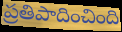
ప్రతిపాదించింది